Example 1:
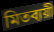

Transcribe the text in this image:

মিতব্যয়ী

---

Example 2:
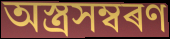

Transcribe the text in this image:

অস্ত্ৰসম্বৰণ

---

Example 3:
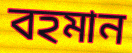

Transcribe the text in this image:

বহমান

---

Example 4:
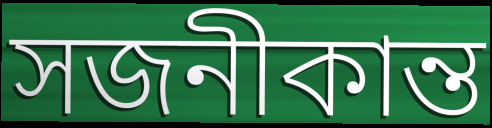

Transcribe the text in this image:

সজনীকান্ত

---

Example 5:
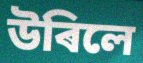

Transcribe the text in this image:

উৰিলে